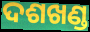
ଦଶଖଣ୍ଡ